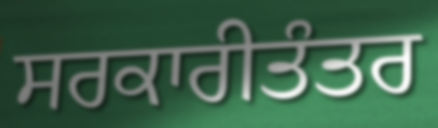
ਸਰਕਾਰੀਤੰਤਰ